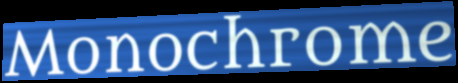
Monochrome